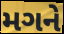
મગને